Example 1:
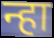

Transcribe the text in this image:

न्हा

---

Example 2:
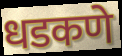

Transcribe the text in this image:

धडकणे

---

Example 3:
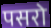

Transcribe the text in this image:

पसरो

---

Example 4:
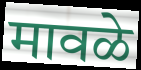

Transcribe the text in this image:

मावळे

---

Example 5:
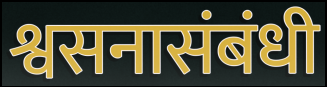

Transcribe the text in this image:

श्वसनासंबंधी